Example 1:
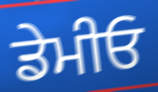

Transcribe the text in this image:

ਡੇਮੀਓ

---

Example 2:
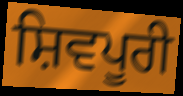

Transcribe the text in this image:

ਸ਼ਿਵਪੂਰੀ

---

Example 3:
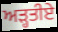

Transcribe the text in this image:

ਅੜ੍ਹਤੀਏ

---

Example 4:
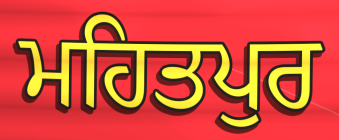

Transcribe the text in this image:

ਮਹਿਤਪੁਰ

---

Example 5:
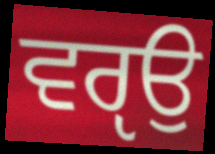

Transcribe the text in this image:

ਵਰੵਉ